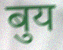
बुय